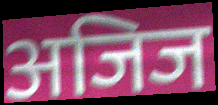
अजिज